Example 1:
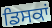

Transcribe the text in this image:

ਡਿਸਕਾਂ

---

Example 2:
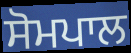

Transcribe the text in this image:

ਸੋਮਪਾਲ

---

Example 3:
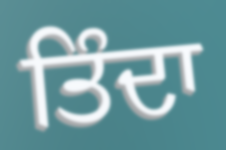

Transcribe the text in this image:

ਤਿੰਦਾ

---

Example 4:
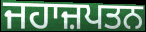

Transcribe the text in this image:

ਜਹਾਜ਼ਪਤਨ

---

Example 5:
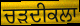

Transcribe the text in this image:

ਚੜਦੀਕਲਾ